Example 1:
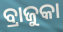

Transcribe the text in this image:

ବ୍ରାଜୁକା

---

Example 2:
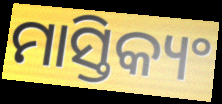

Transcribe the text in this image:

ମାସ୍ତିକ୍ୟଂ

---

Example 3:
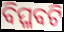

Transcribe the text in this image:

ବିପ୍ଳବଟି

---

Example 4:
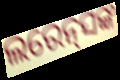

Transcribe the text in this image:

ଲରେନ୍‌ସଙ୍କ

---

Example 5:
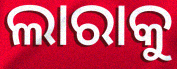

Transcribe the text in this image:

ଲାରାକୁ